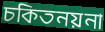
চকিতনয়না